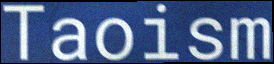
Taoism